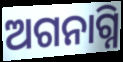
ଅଗନାଗ୍ନି